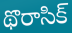
థొరాసిక్